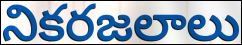
నికరజలాలు